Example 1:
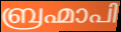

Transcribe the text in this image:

ബ്രഹ്മാപി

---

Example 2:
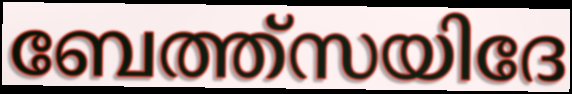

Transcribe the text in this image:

ബേത്ത്സയിദേ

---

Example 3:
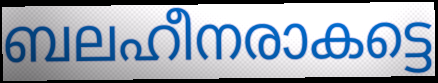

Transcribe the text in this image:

ബലഹീനരാകട്ടെ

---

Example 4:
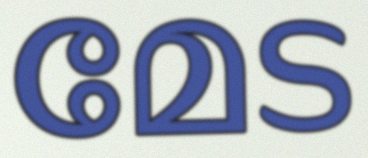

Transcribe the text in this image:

മേട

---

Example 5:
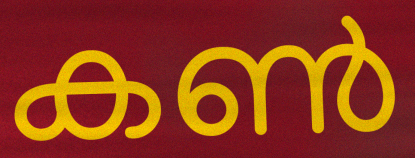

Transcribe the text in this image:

കൺ